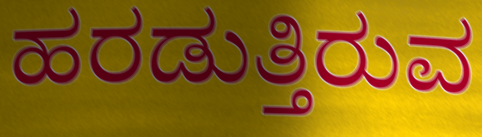
ಹರಡುತ್ತಿರುವ